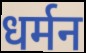
धर्मन